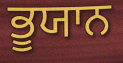
ਭੂਯਾਨ